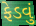
ફેડવું